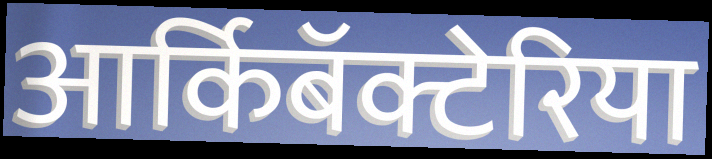
आर्किबॅक्टेरिया